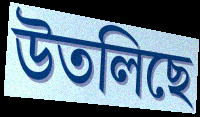
উতলিছে